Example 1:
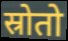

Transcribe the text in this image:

स्रोतो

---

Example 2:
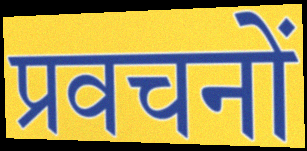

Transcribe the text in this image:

प्रवचनों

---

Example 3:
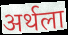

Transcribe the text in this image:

अर्थला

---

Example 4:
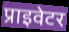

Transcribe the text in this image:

प्राइवेटर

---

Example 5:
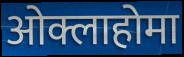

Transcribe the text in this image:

ओक्लाहोमा